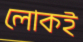
লোকই